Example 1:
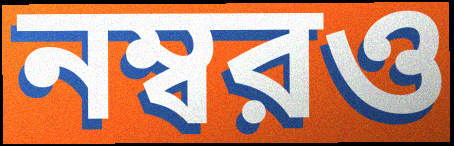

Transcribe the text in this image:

নম্বরও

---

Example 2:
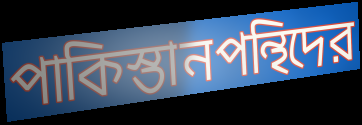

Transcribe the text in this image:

পাকিস্তানপন্থিদের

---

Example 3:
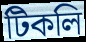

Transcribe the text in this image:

টিকলি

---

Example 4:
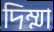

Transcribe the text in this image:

দিম্মা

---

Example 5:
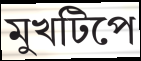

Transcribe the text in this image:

মুখটিপে